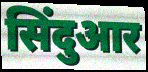
सिंदुआर